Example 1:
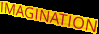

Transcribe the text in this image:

IMAGINATION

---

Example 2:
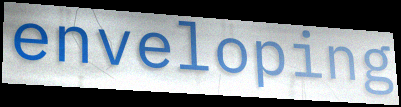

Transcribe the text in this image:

enveloping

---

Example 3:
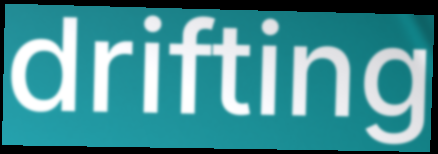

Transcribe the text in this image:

drifting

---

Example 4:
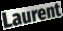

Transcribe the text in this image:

Laurent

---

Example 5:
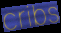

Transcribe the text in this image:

cribs